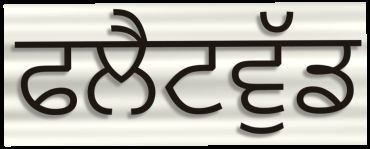
ਫਲੈਟਵੁੱਡ